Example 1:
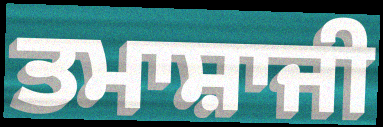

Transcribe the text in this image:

ਤਮਾਸ਼ਾਜੀ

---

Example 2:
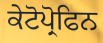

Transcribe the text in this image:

ਕੇਟੋਪ੍ਰੋਫਿਨ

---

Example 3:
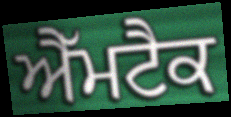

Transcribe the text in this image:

ਐੱਮਟੈਕ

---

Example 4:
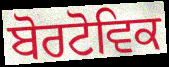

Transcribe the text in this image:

ਬੋਰਟੋਵਿਕ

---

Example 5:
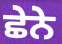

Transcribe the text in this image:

ਛੇਨੇ